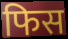
फिस